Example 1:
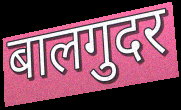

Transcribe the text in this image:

बालगुदर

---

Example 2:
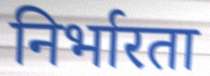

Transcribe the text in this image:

निर्भारता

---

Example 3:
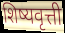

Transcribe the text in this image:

शिष्यवृत्ती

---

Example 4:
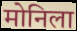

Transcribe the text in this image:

मोनिला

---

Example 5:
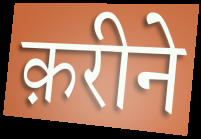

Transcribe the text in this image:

क़रीने